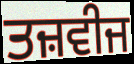
ਤਜ਼ਵੀਜ